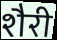
शैरी